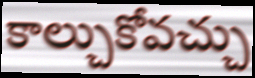
కాల్చుకోవచ్చు